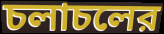
চলাচলের